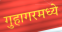
गुहागरमध्ये